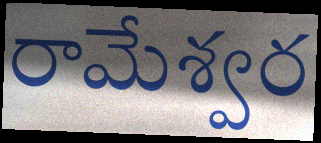
రామేశ్వర